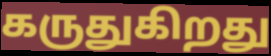
கருதுகிறது